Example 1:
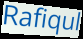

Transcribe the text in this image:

Rafiqul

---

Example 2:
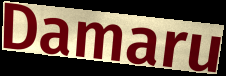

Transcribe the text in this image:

Damaru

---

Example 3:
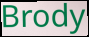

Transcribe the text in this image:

Brody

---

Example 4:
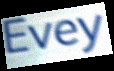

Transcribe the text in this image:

Evey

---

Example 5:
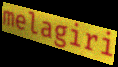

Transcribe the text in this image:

melagiri